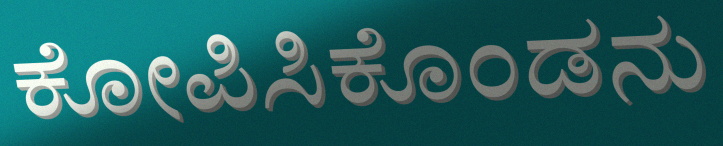
ಕೋಪಿಸಿಕೊಂಡನು